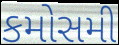
કમોસમી